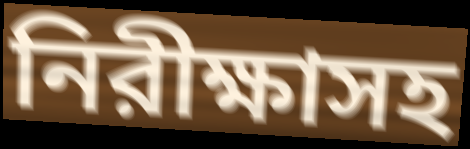
নিরীক্ষাসহ